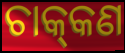
ଚାକ୍‌କଣ